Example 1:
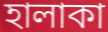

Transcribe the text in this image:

হালাকা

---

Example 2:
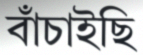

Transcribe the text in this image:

বাঁচাইছি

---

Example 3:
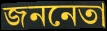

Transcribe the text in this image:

জননেতা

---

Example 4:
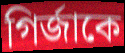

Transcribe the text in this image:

গির্জাকে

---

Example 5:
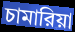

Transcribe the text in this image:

চামারিয়া